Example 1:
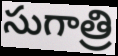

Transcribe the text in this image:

సుగాత్రి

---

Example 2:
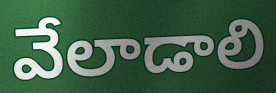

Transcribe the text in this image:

వేలాడాలి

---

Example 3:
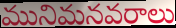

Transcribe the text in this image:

మునిమనవరాలు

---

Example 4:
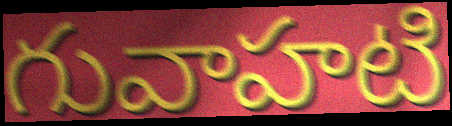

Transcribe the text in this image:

గువాహటి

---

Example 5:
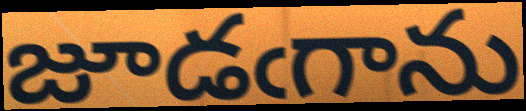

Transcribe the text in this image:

జూడఁగాను